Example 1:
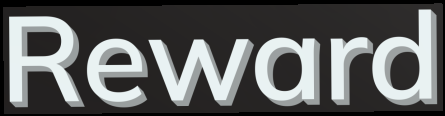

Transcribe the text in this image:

Reward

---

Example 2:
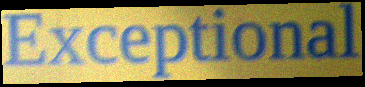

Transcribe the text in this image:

Exceptional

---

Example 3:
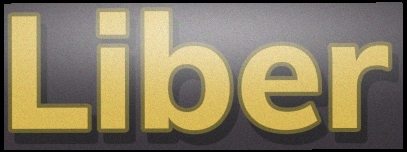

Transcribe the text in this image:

Liber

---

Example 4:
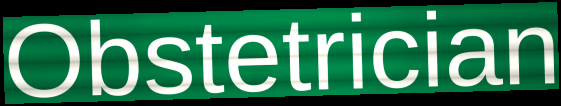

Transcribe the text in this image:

Obstetrician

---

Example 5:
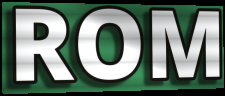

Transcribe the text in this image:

ROM